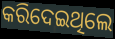
କରିଦେଇଥିଲେ